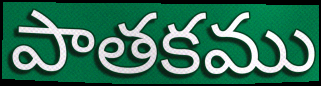
పాతకము